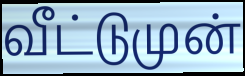
வீட்டுமுன்